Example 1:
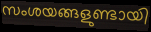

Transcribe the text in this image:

സംശയങ്ങളുണ്ടായി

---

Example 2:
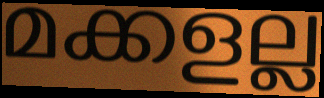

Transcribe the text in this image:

മക്കളല്ല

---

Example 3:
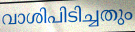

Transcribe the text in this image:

വാശിപിടിച്ചതും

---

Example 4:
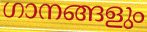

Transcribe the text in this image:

ഗാനങ്ങളും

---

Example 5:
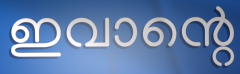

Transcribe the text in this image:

ഇവാന്റെ